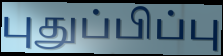
புதுப்பிப்பு